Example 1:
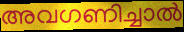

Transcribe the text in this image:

അവഗണിച്ചാൽ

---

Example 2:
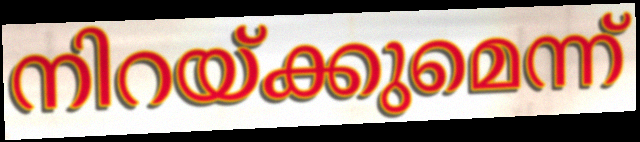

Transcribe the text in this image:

നിറയ്ക്കുമെന്ന്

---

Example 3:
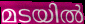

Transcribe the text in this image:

മടയിൽ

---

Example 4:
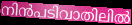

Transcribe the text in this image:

നിൻപടിവാതിലിൽ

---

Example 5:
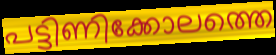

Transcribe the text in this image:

പട്ടിണിക്കോലത്തെ